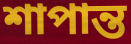
শাপান্ত